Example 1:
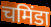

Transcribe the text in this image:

चमिंडा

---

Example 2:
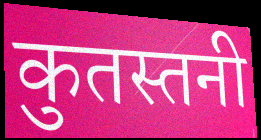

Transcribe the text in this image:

कुतस्तनी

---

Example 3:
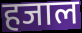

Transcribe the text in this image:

हजाल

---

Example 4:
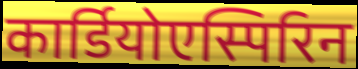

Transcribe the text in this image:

कार्डियोएस्पिरिन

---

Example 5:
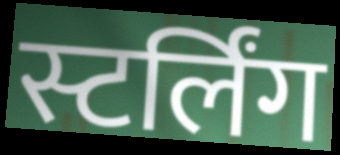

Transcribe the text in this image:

स्‍टर्लिंग